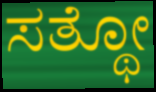
ಸತ್ಥೋ